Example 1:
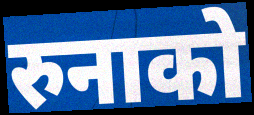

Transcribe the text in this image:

रुनाको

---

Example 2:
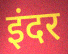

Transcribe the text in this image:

इंदर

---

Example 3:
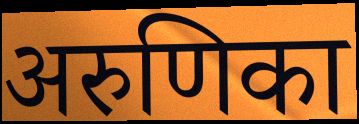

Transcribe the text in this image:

अरुणिका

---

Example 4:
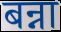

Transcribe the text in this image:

बन्ना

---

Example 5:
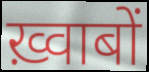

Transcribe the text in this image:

ख़्वाबों